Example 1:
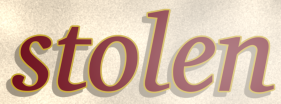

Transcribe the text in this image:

stolen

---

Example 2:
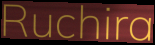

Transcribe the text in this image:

Ruchira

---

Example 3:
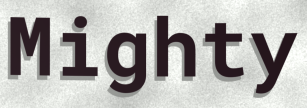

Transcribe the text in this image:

Mighty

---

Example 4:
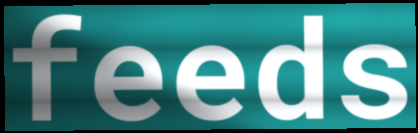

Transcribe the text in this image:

feeds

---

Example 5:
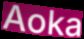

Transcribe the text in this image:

Aoka